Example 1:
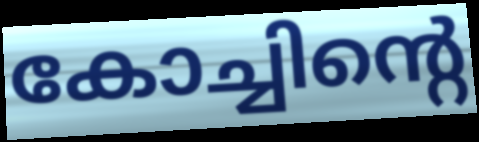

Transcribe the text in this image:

കോച്ചിന്റെ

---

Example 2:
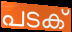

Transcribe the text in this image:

പടക്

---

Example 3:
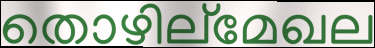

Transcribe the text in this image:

തൊഴില്മേഖല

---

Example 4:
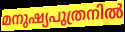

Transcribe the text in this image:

മനുഷ്യപുത്രനിൽ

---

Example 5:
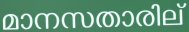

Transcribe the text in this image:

മാനസതാരില്